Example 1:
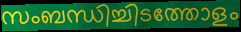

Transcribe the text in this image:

സംബന്ധിച്ചിടത്തോളം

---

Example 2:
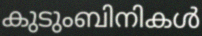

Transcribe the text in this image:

കുടുംബിനികൾ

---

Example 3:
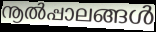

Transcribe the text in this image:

നൂൽപ്പാലങ്ങൾ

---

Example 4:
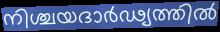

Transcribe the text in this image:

നിശ്ചയദാർഢ്യത്തിൽ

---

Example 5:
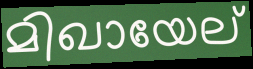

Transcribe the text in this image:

മിഖായേല്